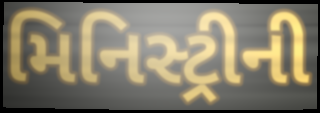
મિનિસ્ટ્રીની